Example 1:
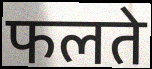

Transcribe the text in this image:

फलते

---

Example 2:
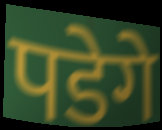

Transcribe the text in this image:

पडेगे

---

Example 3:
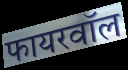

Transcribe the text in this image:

फायरवॉल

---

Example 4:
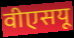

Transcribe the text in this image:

वीएसयू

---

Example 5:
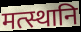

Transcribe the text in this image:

मत्स्थानि